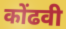
कोंढवी